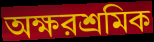
অক্ষরশ্রমিক